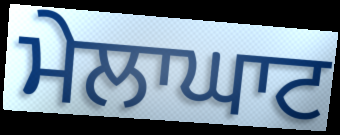
ਮੇਲਾਘਾਟ